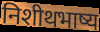
निशीथभाष्य